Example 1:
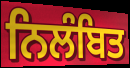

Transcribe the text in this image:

ਨਿਲੰਬਿਤ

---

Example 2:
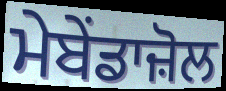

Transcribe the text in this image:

ਮੇਬੇਂਡਾਜ਼ੋਲ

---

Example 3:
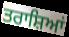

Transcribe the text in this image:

ਤਰਾਸ਼ਿਆਂ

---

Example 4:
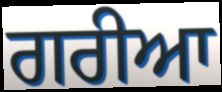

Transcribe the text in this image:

ਗਰੀਆ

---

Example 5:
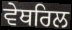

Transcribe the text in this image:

ਵੇਥਰਿਲ